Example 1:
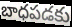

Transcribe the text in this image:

బాధపడకు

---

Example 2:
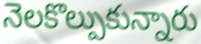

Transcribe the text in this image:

నెలకొల్పుకున్నారు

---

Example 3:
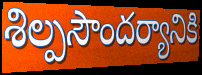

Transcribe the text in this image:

శిల్పసౌందర్యానికి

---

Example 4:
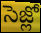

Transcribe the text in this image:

సెజ్లో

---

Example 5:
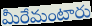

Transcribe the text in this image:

మీరేమంటారు